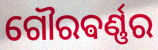
ଗୌରଵର୍ଣ୍ଣର